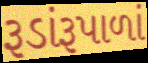
રૂડાંરૂપાળાં